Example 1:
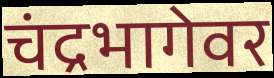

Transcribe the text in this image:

चंद्रभागेवर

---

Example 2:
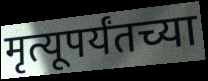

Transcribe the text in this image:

मृत्यूपर्यंतच्या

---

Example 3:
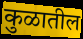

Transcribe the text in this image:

कुळातील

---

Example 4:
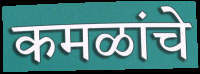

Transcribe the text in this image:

कमळांचे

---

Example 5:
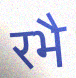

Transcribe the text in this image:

रभै